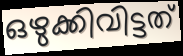
ഒഴുക്കിവിട്ടത്